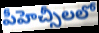
పీహెచ్సీలలో